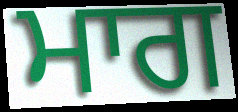
ਮਾਗ